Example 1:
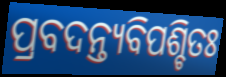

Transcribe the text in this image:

ପ୍ରବଦନ୍ତ୍ୟବିପଶ୍ଚିତଃ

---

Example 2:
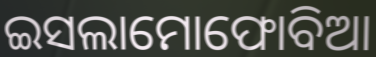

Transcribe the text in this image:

ଇସଲାମୋଫୋବିଆ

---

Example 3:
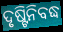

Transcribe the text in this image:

ଦୃଷ୍ଟିନିବଦ୍ଧ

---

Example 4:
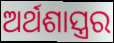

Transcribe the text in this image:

ଅର୍ଥଶାସ୍ତ୍ରର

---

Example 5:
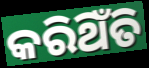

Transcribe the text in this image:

କରିଥିଁତି